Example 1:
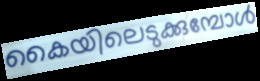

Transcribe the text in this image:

കൈയിലെടുക്കുമ്പോൾ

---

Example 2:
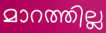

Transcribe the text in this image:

മാറത്തില്ല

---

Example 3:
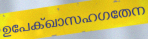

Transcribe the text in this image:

ഉപേക്ഖാസഹഗതേന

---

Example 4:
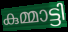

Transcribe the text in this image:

കുമ്മാട്ടി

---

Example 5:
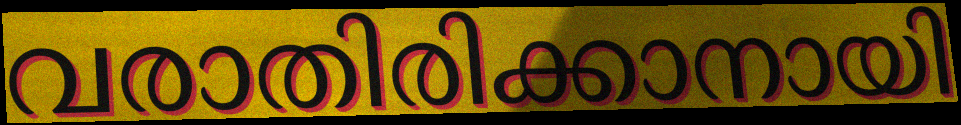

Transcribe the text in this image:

വരാതിരിക്കാനായി